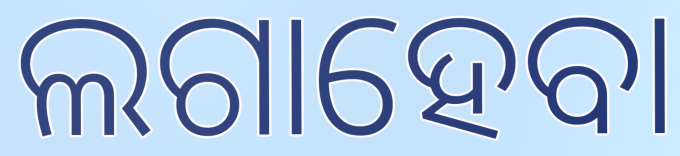
ଲଗାହେବା